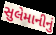
સુલેમાનીનું